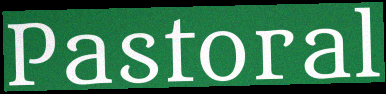
Pastoral